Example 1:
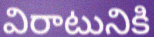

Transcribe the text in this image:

విరాటునికి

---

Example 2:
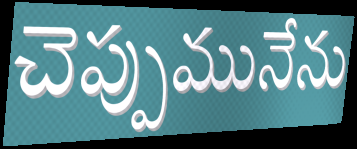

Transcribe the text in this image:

చెప్పుమునేను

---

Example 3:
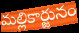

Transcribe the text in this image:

మల్లికార్జునం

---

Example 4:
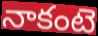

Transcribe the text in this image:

నాకంటె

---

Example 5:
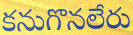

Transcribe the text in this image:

కనుగొనలేరు